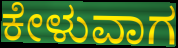
ಕೇಳುವಾಗ